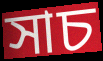
সাচ